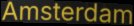
Amsterdam